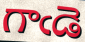
గాఁడె